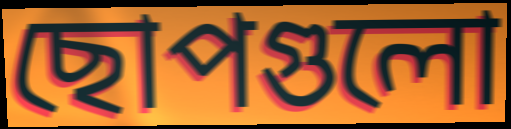
ছোপগুলো